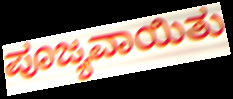
ಪೂಜ್ಯವಾಯಿತು